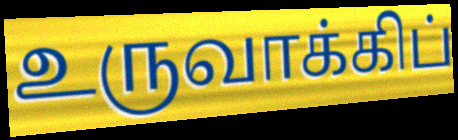
உருவாக்கிப்